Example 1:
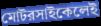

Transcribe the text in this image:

মোটরসাইকেলেই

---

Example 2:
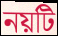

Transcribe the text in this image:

নয়টি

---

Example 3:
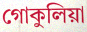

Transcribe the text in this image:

গোকুলিয়া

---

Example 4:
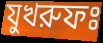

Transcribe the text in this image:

যুখরুফঃ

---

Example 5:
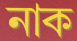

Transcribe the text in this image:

নাক